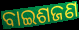
ବାଇଶଜଣ